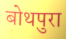
बोथपुरा